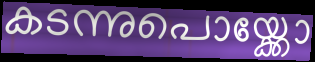
കടന്നുപൊയ്ക്കോ